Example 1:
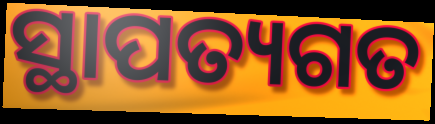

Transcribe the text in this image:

ସ୍ଥାପତ୍ୟଗତ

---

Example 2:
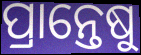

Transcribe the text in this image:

ପ୍ରାନ୍ତେଷୁ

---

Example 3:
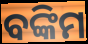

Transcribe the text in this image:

ବଙ୍କିମ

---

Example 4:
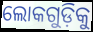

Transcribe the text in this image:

ଲୋକଗୁଡ଼ିକୁ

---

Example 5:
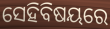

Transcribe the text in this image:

ସେହିବିଷୟରେ